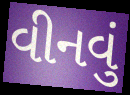
વીનવું